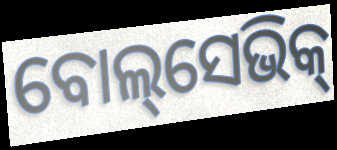
ବୋଲ୍‌ସେଭିକ୍